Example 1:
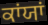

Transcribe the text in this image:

ਕਾਂਯਾਂ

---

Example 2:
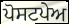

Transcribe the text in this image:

ਪੋਸਟਪੇਅ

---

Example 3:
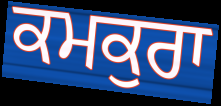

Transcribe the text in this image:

ਕਮਕੁਰਾ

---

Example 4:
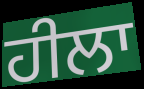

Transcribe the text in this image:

ਹੀਲਾ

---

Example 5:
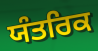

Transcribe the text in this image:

ਯੰਤਰਿਕ